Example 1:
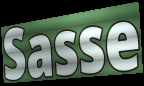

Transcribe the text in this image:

Sasse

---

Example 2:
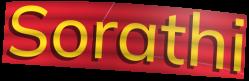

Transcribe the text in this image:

Sorathi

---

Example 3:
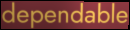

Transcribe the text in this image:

dependable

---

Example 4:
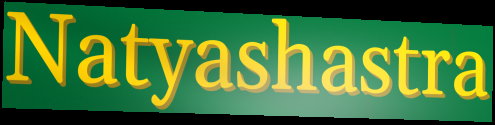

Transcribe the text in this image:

Natyashastra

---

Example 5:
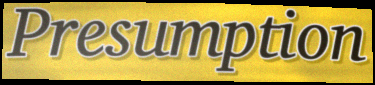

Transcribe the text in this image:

Presumption